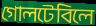
গোলটেবিলে